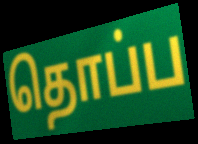
தொப்ப